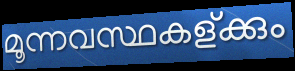
മൂന്നവസ്ഥകള്ക്കും